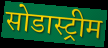
सोडास्ट्रीम